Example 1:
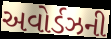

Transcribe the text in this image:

અવોર્ડઝની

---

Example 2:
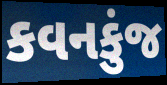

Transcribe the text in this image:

કવનકુંજ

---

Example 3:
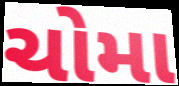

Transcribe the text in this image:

ચોમા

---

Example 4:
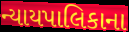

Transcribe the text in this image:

ન્યાયપાલિકાના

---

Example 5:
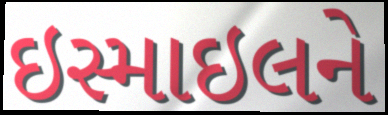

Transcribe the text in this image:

ઇસ્માઇલને